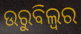
ଉରୁବିଲ୍ଵର